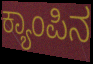
ಕ್ಯಾಂಪಿನ